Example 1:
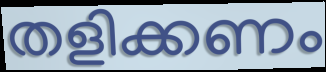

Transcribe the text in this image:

തളിക്കണം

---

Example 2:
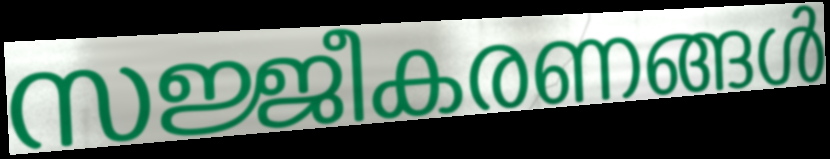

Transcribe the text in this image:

സജ്ജീകരണങ്ങൾ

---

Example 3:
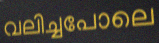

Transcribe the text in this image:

വലിച്ചപോലെ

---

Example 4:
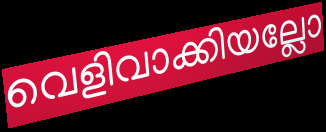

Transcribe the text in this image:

വെളിവാക്കിയല്ലോ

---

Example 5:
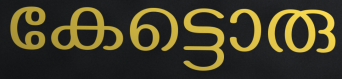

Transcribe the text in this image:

കേട്ടൊരു